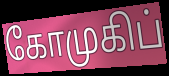
கோமுகிப்